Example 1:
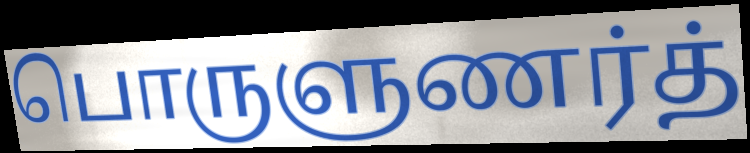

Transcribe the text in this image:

பொருளுணர்த்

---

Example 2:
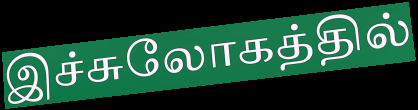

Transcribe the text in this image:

இச்சுலோகத்தில்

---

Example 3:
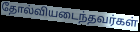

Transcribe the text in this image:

தோல்வியடைந்தவர்கள்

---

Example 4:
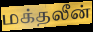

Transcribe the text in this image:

மக்தலீன்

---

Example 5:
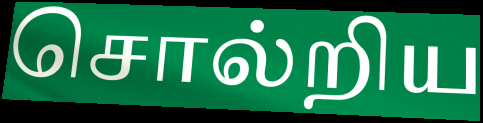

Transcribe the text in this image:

சொல்றிய